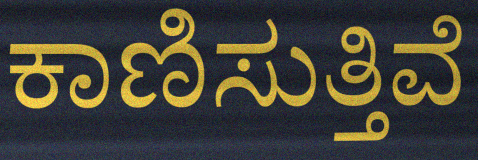
ಕಾಣಿಸುತ್ತಿವೆ